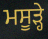
ਮਸੂੜ੍ਹੇ